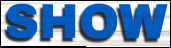
SHOW